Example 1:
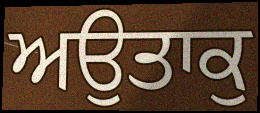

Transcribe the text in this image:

ਅਉਤਾਕੁ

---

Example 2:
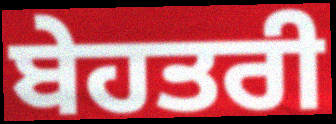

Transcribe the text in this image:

ਬੇਹਤਰੀ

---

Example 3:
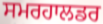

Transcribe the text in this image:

ਸਮਰਹਾਲਡਰ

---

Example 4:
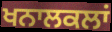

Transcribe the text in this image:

ਖਨਾਲਕਲਾਂ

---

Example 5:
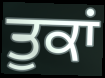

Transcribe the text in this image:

ਤੁਕਾਂ